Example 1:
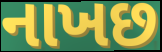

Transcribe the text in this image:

નાખછ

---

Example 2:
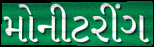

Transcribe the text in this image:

મોનીટરીંગ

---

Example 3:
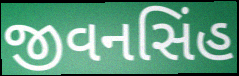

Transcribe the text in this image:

જીવનસિંહ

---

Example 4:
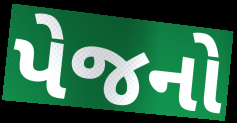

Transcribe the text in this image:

પેજનો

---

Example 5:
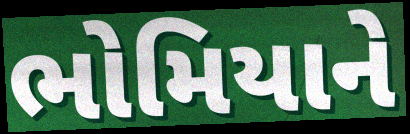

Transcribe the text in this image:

ભોમિયાને